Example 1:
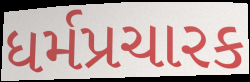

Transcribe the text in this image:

ધર્મપ્રચારક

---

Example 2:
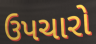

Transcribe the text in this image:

ઉપચારો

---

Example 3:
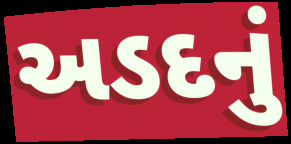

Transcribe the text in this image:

અડદનું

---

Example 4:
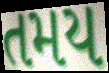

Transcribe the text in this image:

તમય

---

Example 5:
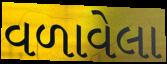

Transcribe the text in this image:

વળાવેલા